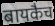
बायकैच